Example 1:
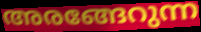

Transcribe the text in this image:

അരങ്ങേറുന്ന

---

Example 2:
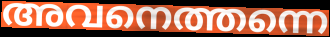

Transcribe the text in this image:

അവനെത്തന്നെ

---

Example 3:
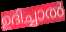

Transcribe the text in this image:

ഉദിച്ചാൽ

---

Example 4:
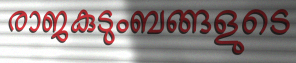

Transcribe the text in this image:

രാജകുടുംബങ്ങളുടെ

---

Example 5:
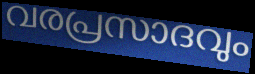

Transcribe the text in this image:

വരപ്രസാദവും